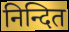
निन्दित